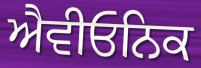
ਐਵੀਓਨਿਕ